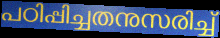
പഠിപ്പിച്ചതനുസരിച്ച്